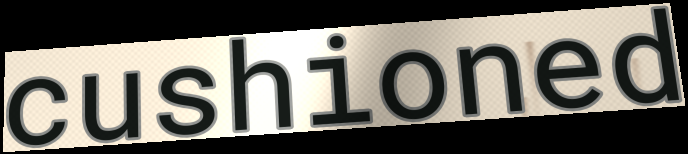
cushioned